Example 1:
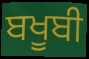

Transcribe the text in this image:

ਬਖੂਬੀ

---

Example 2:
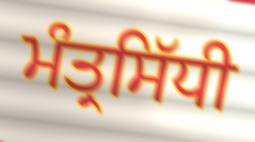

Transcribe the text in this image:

ਮੰਤ੍ਰਸਿੱਧੀ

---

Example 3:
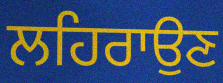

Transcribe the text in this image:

ਲਹਿਰਾਉਣ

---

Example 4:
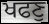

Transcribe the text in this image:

ਖਫਣੁ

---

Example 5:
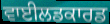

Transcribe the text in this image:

ਵਾਈਲਡਕਾਰਡ